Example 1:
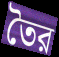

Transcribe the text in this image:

তৈর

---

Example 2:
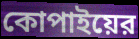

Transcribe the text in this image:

কোপাইয়ের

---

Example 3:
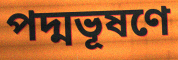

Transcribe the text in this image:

পদ্মভূষণে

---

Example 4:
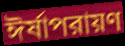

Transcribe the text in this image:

ঈর্ষাপরায়ণ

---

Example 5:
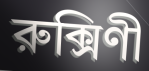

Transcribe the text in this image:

রুক্সিণী